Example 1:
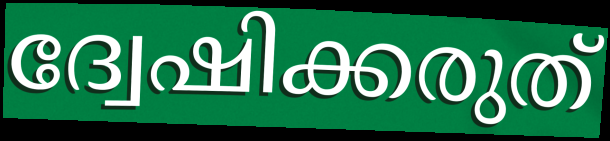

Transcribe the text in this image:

ദ്വേഷിക്കരുത്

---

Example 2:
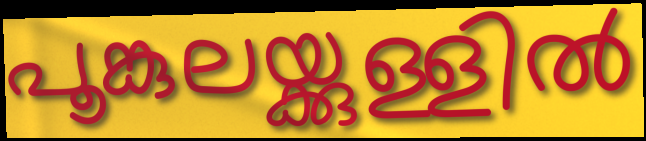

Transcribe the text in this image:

പൂങ്കുലയ്ക്കുള്ളിൽ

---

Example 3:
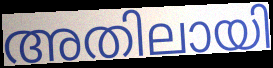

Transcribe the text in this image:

അതിലായി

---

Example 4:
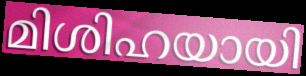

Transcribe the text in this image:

മിശിഹയായി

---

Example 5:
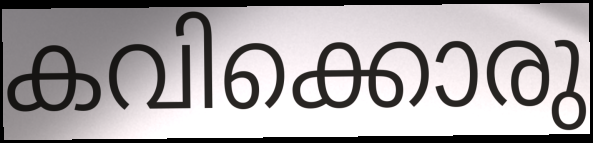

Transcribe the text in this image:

കവിക്കൊരു